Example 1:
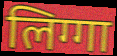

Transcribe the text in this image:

लिग्गा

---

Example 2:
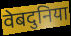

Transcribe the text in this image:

वेबदुनिया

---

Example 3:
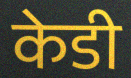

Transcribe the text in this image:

केडी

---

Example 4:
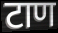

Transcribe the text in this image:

टाण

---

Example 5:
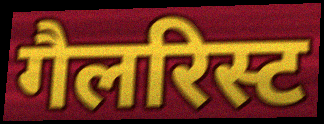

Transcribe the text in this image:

गैलरिस्ट